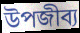
উপজীব্য